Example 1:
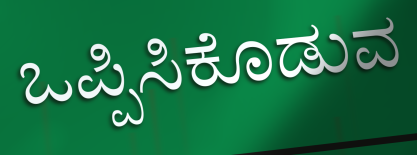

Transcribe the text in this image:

ಒಪ್ಪಿಸಿಕೊಡುವ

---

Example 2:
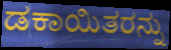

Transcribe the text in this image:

ಡಕಾಯಿತರನ್ನು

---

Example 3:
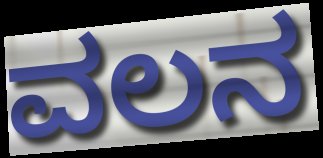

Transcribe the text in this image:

ವಲನ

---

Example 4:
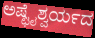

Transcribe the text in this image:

ಅಷ್ಟೈಶ್ವರ್ಯದ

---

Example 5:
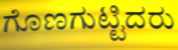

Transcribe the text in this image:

ಗೊಣಗುಟ್ಟಿದರು